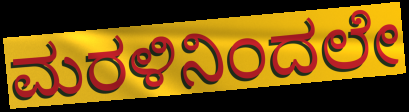
ಮರಳಿನಿಂದಲೇ